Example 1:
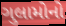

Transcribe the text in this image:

ગુલામોનો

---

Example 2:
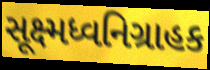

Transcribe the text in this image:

સૂક્ષ્મધ્વનિગ્રાહક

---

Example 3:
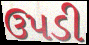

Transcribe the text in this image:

ઉપડી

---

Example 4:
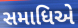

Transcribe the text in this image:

સમાધિએ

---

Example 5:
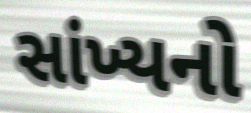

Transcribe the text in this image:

સાંખ્યનો